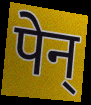
पेन्